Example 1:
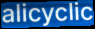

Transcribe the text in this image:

alicyclic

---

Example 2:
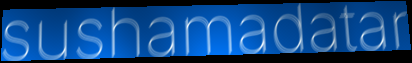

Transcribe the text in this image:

sushamadatar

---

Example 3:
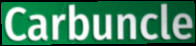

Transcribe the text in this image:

Carbuncle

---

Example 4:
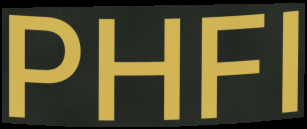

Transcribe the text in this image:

PHFI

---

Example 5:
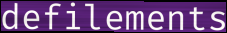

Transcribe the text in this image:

defilements